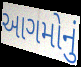
આગમોનું